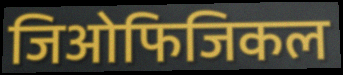
जिओफिजिकल